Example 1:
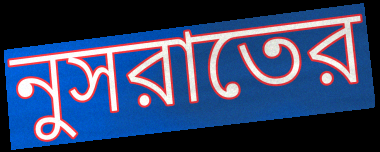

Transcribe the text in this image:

নুসরাতের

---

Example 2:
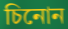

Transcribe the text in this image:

চিনোন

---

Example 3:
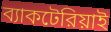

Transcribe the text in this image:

ব্যাকটেরিয়াই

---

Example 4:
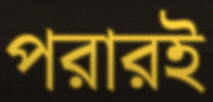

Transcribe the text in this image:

পরারই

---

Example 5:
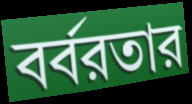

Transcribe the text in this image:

বর্বরতার